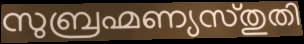
സുബ്രഹ്മണ്യസ്തുതി